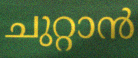
ചുറ്റാൻ